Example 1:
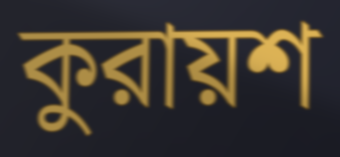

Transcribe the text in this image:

কুরায়শ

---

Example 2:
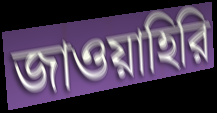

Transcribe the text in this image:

জাওয়াহিরি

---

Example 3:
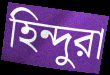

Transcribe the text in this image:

হিন্দুরা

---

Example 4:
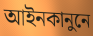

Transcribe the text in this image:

আইনকানুনে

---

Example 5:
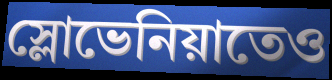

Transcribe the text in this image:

স্লোভেনিয়াতেও